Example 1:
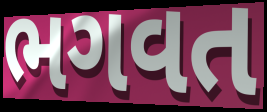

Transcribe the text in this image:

ભગવત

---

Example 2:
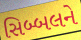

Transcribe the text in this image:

સિબ્બલને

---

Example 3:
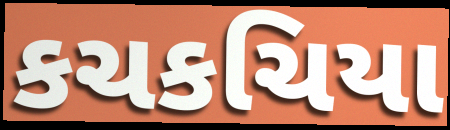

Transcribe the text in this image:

કચકચિયા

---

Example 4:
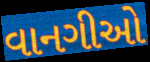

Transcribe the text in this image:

વાનગીઓ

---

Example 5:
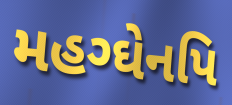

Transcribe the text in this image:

મહગ્ઘેનપિ